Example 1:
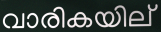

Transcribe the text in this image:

വാരികയില്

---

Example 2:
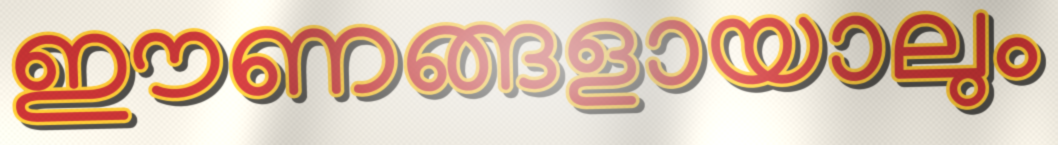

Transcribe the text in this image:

ഈണങ്ങളായാലും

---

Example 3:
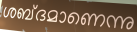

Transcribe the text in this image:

ശബ്ദമാണെന്നു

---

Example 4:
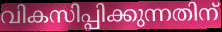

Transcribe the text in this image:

വികസിപ്പിക്കുന്നതിന്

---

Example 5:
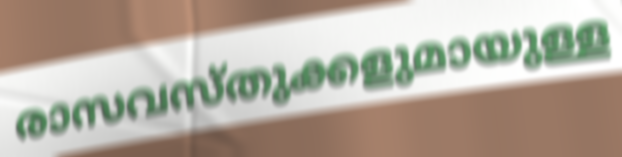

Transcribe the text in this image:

രാസവസ്തുക്കളുമായുള്ള